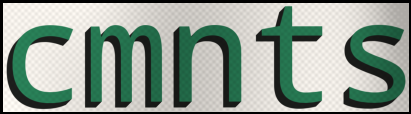
cmnts